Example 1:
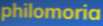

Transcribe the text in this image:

philomoria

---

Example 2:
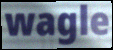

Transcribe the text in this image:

wagle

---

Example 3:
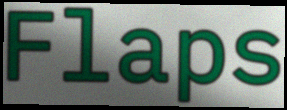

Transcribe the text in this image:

Flaps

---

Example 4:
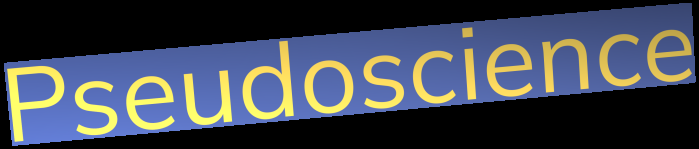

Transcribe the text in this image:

Pseudoscience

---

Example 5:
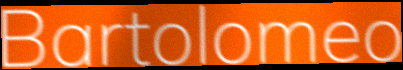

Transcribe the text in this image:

Bartolomeo